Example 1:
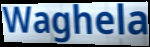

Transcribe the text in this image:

Waghela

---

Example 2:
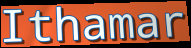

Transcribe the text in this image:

Ithamar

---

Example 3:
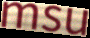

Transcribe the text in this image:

msu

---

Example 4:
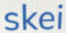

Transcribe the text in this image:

skei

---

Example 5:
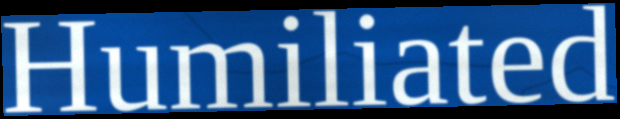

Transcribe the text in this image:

Humiliated